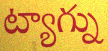
ట్యాగ్ను